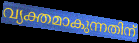
വ്യക്തമാകുന്നതിന്